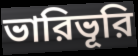
ভারিভূরি